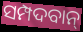
ସମ୍ପଦବାନ୍